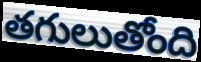
తగులుతోంది